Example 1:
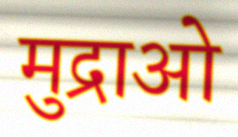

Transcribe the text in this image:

मुद्राओ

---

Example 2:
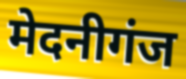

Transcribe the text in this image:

मेदनीगंज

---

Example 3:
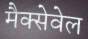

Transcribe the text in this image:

मैक्सेवेल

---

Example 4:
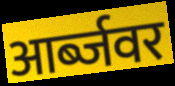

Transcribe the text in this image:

आर्ब्जवर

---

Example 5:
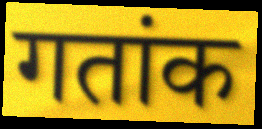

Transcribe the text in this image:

गतांक